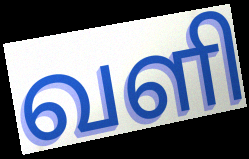
வளி